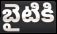
బైటికి